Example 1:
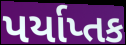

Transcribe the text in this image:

પર્યાપ્તક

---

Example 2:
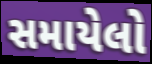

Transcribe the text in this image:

સમાયેલો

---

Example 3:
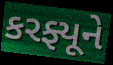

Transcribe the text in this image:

કરફ્યૂને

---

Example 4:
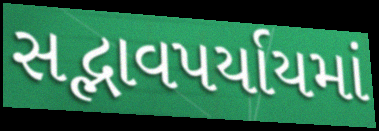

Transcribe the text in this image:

સદ્ભાવપર્યાયમાં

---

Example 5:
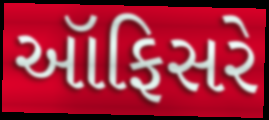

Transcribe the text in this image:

ઑફિસરે